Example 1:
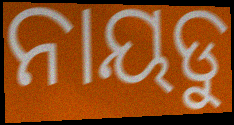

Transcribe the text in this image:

ନାୟଡୁ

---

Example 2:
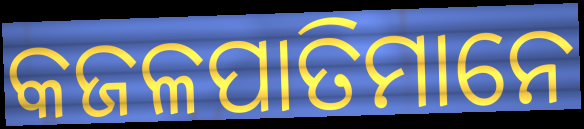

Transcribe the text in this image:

କଜଳପାତିମାନେ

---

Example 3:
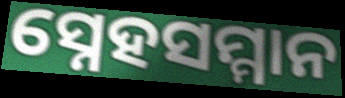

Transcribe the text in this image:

ସ୍ନେହସମ୍ମାନ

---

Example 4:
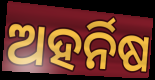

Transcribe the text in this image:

ଅହର୍ନିଷ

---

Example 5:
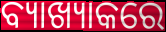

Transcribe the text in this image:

ବ୍ୟାଖ୍ୟାକରେ